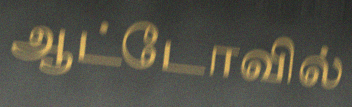
ஆட்டோவில்